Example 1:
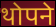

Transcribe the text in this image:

थोपने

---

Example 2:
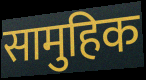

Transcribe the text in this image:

सामुहिक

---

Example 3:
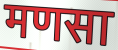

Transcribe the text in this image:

मणसा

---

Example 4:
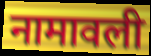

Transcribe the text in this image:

नामावली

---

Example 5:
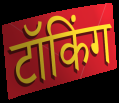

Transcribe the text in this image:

टॉकिंग